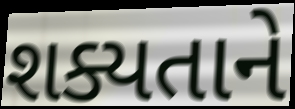
શક્યતાને